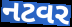
નટવર